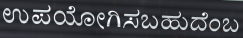
ಉಪಯೋಗಿಸಬಹುದೆಂಬ